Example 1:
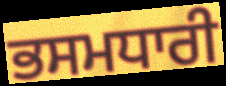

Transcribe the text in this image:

ਭਸਮਧਾਰੀ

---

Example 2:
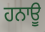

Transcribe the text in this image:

ਹਨਾਊ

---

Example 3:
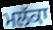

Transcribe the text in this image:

ਮਲੱਕਾ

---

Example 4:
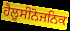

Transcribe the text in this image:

ਹੈਲੂਸੀਨੋਜਨਿਕ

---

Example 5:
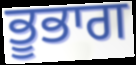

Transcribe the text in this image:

ਭੂਭਾਗ